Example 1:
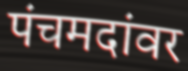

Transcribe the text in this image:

पंचमदांवर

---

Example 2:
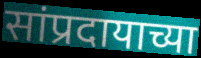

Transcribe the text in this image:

सांप्रदायाच्या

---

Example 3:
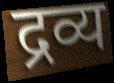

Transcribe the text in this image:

द्रव्य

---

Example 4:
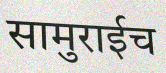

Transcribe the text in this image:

सामुराईच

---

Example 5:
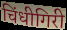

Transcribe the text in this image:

चिंधीगिरी